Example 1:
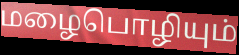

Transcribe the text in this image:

மழைபொழியும்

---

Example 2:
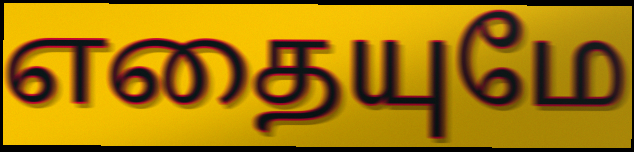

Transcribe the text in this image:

எதையுமே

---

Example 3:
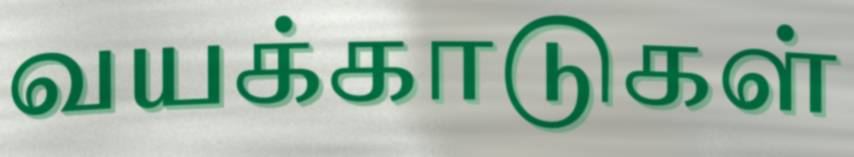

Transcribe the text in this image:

வயக்காடுகள்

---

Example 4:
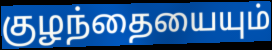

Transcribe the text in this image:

குழந்தையையும்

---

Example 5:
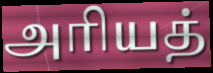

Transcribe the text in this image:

அரியத்